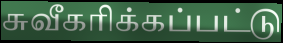
சுவீகரிக்கப்பட்டு